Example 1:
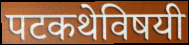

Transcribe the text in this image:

पटकथेविषयी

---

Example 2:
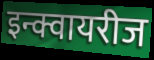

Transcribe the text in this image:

इन्क्वायरीज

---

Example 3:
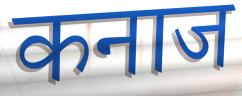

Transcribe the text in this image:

कनाज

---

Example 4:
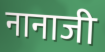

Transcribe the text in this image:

नानाजी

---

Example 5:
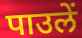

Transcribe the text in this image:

पाउलें